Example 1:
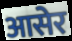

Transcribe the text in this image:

आसेर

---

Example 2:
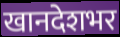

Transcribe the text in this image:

खानदेशभर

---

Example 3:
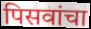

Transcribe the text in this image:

पिसवांचा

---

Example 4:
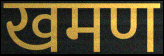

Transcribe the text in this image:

खमण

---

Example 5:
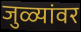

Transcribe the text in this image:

जुळ्यांवर